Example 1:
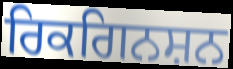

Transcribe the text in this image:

ਰਿਕਗਿਨਸ਼ਨ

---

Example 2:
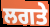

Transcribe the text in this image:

ਲਗਤੇ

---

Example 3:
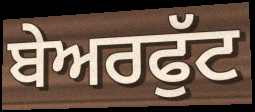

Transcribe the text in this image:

ਬੇਅਰਫੁੱਟ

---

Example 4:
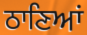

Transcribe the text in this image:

ਠਾਣਿਆਂ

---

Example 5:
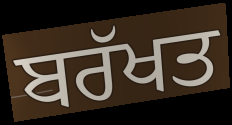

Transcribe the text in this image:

ਬਰੱਖਤ